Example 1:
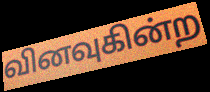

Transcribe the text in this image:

வினவுகின்ற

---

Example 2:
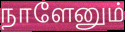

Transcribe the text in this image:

நாளேனும்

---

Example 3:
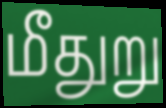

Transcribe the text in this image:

மீதுறு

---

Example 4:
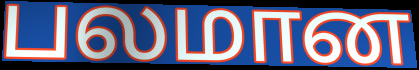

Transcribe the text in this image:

பலமான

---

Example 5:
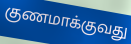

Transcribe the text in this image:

குணமாக்குவது